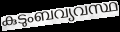
കുടുംബവ്യവസ്ഥ